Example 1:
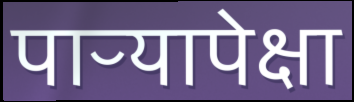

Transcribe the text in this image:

पाऱ्यापेक्षा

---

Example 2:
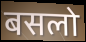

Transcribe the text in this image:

बसलो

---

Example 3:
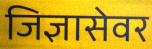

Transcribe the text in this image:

जिज्ञासेवर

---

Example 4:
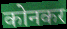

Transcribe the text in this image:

कोनकर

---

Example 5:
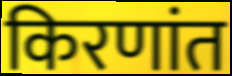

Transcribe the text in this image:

किरणांत